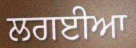
ਲਗਈਆ